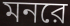
মনরে